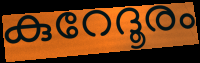
കുറേദൂരം